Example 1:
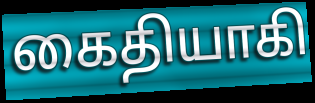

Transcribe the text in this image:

கைதியாகி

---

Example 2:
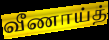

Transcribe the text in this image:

வீணாய்த்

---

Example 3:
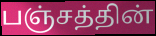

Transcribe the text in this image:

பஞ்சத்தின்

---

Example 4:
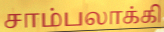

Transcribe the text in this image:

சாம்பலாக்கி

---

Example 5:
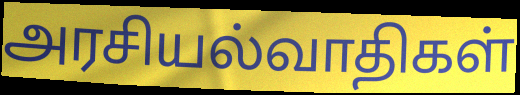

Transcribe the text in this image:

அரசியல்வாதிகள்